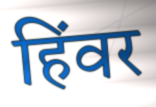
हिंवर